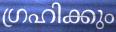
ഗ്രഹിക്കും